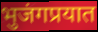
भुजंगप्रयात